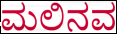
ಮಲಿನವ